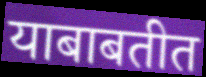
याबाबतीत